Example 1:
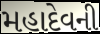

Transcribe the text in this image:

મહાદેવની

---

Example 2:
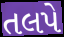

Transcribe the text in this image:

તલપે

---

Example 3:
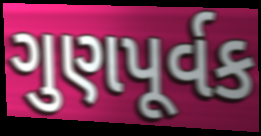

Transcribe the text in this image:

ગુણપૂર્વક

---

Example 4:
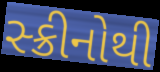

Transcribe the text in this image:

સ્ક્રીનોથી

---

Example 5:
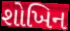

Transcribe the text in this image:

શોખિન